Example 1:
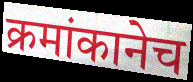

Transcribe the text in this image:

क्रमांकानेच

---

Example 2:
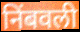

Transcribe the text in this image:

निंबवली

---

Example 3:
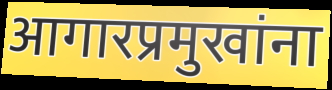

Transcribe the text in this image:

आगारप्रमुखांना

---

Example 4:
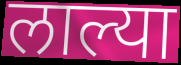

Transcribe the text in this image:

लाल्या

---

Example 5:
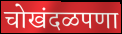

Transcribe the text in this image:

चोखंदळपणा